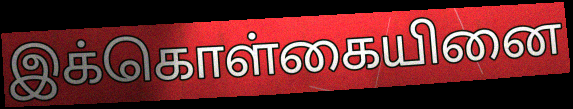
இக்கொள்கையினை